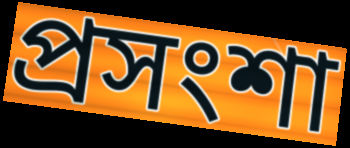
প্ৰসংশা